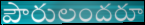
పౌరులందరూ